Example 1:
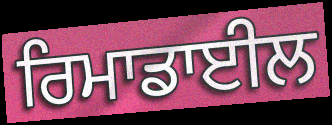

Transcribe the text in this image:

ਰਿਮਾਡਾਈਲ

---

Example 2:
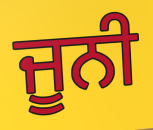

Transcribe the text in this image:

ਜੂਨੀ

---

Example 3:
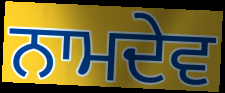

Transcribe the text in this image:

ਨਾਮਦੇਵ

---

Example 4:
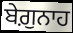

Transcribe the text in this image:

ਬੇਗ਼ੁਨਾਹ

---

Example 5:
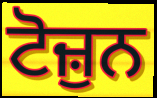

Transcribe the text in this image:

ਟੋਜ਼ੁਨ